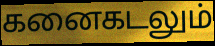
கனைகடலும்